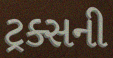
ટ્રક્સની